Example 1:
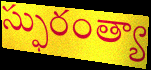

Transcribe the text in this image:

స్ఫురంత్యా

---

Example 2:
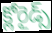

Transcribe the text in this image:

క్లోరైడ్స్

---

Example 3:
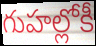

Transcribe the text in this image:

గుహల్లోకీ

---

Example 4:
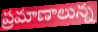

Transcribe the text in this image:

ప్రమాణాలున్న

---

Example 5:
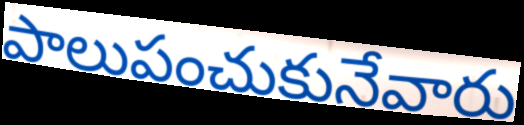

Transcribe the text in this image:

పాలుపంచుకునేవారు